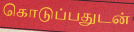
கொடுப்பதுடன்